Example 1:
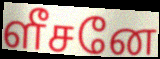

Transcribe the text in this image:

ளீசனே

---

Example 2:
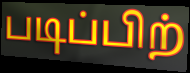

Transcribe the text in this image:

படிப்பிற்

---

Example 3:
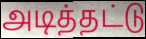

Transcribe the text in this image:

அடித்தட்டு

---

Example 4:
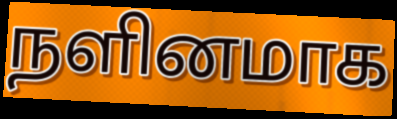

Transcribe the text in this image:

நளினமாக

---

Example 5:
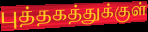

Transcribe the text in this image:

புத்தகத்துக்குள்